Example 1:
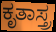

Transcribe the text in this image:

ಕೃತಾಸ್ತ್ರ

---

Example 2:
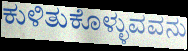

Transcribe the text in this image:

ಕುಳಿತುಕೊಳ್ಳುವವನು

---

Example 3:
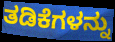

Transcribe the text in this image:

ತಡಿಕೆಗಳನ್ನು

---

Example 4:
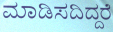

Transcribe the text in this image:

ಮಾಡಿಸದಿದ್ದರೆ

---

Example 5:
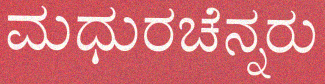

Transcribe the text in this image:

ಮಧುರಚೆನ್ನರು